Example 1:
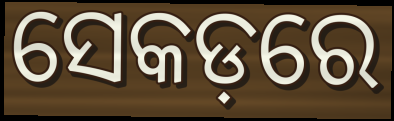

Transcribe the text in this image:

ସେକଡ଼ରେ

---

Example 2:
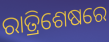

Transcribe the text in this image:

ରାତ୍ରିଶେଷରେ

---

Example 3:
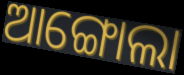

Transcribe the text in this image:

ଆଙ୍ଗୋଲା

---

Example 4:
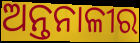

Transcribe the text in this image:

ଅନ୍ତନାଳୀର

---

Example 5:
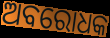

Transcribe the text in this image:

ଅବରୋଧକ